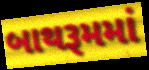
બાથરૂમમાં